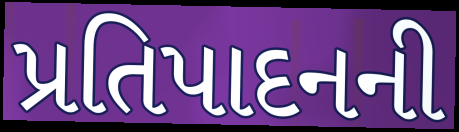
પ્રતિપાદનની